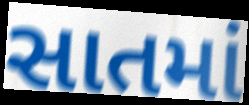
સાતમાં